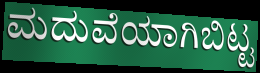
ಮದುವೆಯಾಗಿಬಿಟ್ಟ